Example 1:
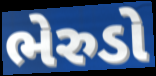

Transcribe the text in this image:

ભેરુડો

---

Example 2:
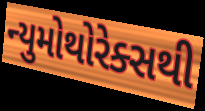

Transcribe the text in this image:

ન્યુમોથોરેક્સથી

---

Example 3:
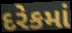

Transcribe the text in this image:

દરેકમાં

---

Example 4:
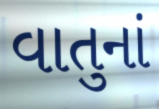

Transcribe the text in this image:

વાતુનાં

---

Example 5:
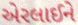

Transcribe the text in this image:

એરલાઈને